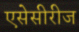
एसेसीरीज